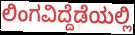
ಲಿಂಗವಿದ್ದೆಡೆಯಲ್ಲಿ